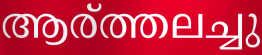
ആര്ത്തലച്ചു